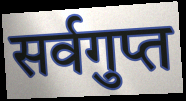
सर्वगुप्त